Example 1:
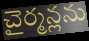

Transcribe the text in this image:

చైర్మన్లను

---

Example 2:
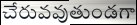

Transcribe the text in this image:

చేరువవుతుండగా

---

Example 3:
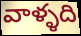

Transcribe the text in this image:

వాళ్ళది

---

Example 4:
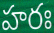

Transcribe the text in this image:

హరః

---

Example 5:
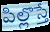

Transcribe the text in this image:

పిల్లొస్తే